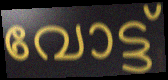
വോട്ട്